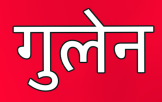
गुलेन